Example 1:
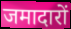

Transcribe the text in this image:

जमादारों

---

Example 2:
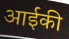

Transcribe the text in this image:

आईकी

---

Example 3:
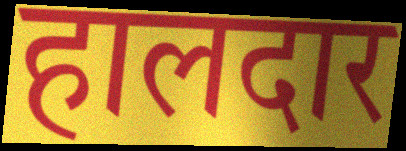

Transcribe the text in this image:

हालदार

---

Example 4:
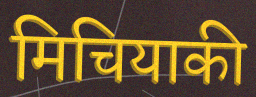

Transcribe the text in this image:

मिचियाकी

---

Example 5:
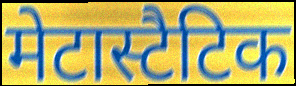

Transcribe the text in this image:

मेटास्टैटिक